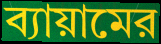
ব্যায়ামের